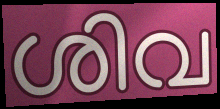
ശിവ